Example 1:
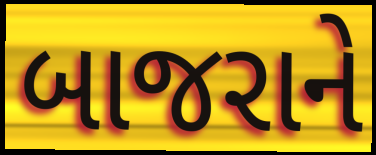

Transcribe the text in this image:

બાજરાને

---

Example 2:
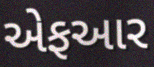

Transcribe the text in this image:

એફઆર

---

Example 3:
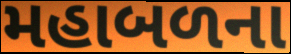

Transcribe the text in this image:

મહાબળના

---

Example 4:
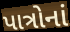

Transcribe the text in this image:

પાત્રોનાં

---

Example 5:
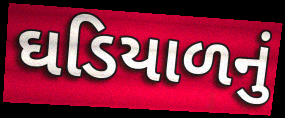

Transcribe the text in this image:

ઘડિયાળનું